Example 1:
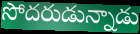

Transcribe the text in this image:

సోదరుడున్నాడు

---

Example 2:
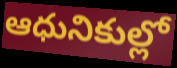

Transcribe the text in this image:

ఆధునికుల్లో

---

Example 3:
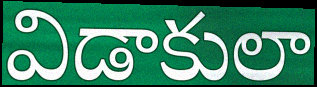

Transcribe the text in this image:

విడాకులా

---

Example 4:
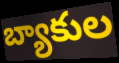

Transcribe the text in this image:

బ్యాకుల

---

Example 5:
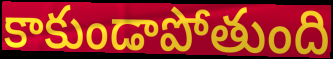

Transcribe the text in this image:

కాకుండాపోతుంది